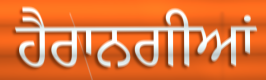
ਹੈਰਾਨਗੀਆਂ